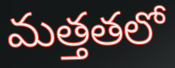
మత్తతలో